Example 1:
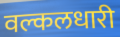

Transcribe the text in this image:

वल्कलधारी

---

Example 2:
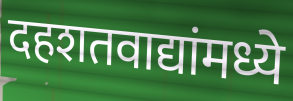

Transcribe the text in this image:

दहशतवाद्यांमध्ये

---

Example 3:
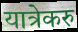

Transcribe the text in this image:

यात्रेकरु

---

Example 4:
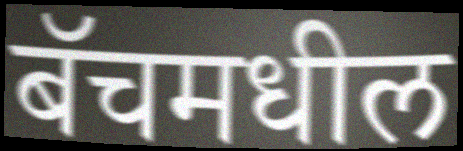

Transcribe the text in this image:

बॅचमधील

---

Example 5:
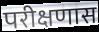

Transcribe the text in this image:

परीक्षणास